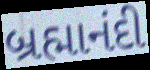
બ્રહ્માનંદી